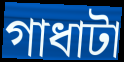
গাধাটা